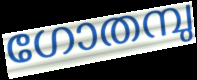
ഗോതമ്പു